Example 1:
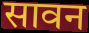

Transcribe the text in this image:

सावन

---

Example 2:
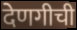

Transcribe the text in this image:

देणगीची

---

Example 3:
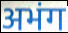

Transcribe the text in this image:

अभंग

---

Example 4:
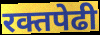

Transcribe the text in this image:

रक्तपेढी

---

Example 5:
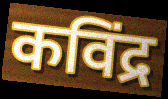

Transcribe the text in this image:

कविंद्र